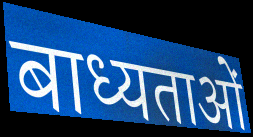
बाध्यताओं